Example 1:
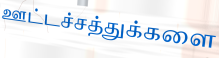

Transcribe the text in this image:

ஊட்டச்சத்துக்களை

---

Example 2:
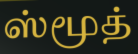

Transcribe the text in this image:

ஸ்மூத்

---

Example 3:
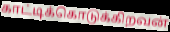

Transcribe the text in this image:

காட்டிக்கொடுக்கிறவன்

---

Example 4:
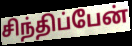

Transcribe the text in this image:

சிந்திப்பேன்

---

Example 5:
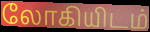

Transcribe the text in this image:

லோகியிடம்